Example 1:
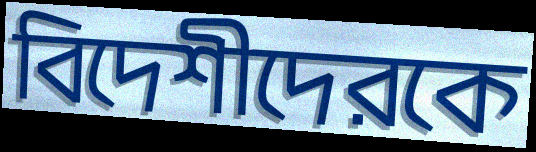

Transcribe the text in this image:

বিদেশীদেরকে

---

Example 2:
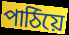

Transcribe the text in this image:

পাঠিয়ে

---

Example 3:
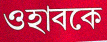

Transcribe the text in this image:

ওহাবকে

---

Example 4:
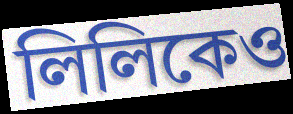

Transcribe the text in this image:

লিলিকেও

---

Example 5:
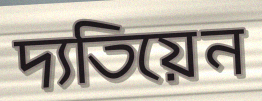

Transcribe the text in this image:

দ্যতিয়েন